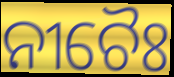
ନୀଚୈଃ